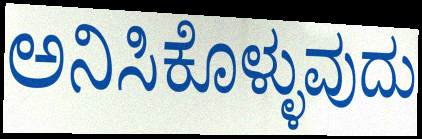
ಅನಿಸಿಕೊಳ್ಳುವುದು